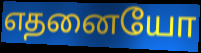
எதனையோ